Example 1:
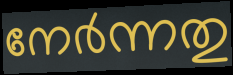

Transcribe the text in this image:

നേർന്നതു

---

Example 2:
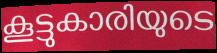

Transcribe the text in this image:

കൂട്ടുകാരിയുടെ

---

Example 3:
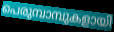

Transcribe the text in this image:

പെരുമ്പാമ്പുകളായി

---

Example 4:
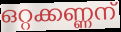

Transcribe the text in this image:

ഒറ്റക്കണ്ണന്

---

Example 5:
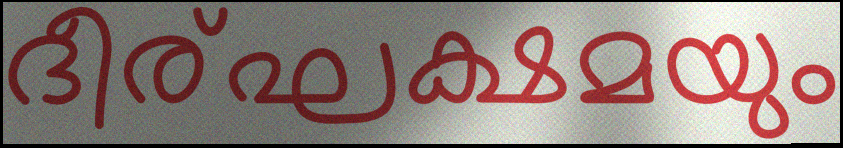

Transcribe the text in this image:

ദീര്ഘക്ഷമയും